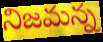
నిజమన్న